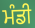
ਮੰਡੀ